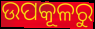
ଉପକୂଳରୁ